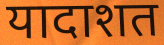
यादाशत